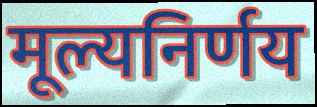
मूल्यनिर्णय